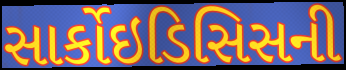
સાર્કોઇડિસિસની